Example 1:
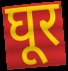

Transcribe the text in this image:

घूर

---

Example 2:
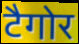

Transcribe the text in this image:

टैगोर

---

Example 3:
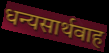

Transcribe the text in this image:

धन्यसार्थवाह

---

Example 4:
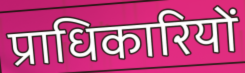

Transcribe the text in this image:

प्राधिकारियों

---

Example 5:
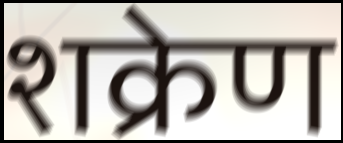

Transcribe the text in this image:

शक्रेण